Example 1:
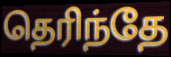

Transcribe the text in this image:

தெரிந்தே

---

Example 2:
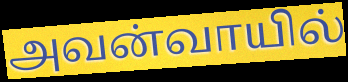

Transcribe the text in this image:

அவன்வாயில்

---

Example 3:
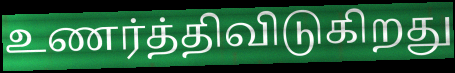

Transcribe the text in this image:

உணர்த்திவிடுகிறது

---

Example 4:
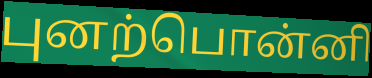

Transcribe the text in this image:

புனற்பொன்னி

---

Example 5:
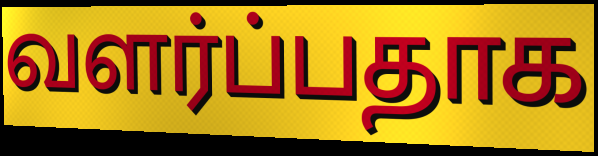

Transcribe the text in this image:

வளர்ப்பதாக